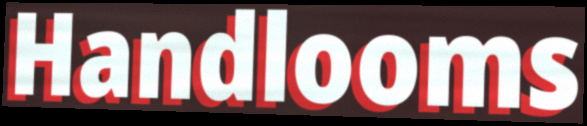
Handlooms